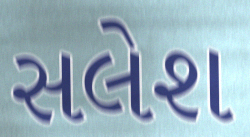
સલેશ